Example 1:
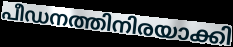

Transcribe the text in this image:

പീഡനത്തിനിരയാക്കി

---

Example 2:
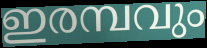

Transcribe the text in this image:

ഇരമ്പവും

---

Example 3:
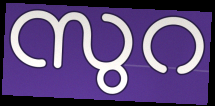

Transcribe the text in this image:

സുറ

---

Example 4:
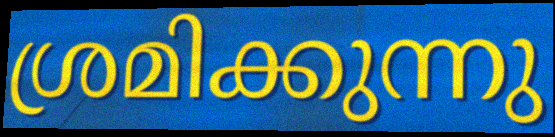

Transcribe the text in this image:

ശ്രമിക്കുന്നു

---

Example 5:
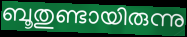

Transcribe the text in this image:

ബൂതുണ്ടായിരുന്നു